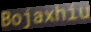
Bojaxhiu